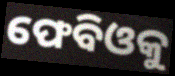
ଫେବିଓକୁ